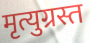
मृत्युग्रस्त